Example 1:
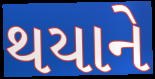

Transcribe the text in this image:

થયાને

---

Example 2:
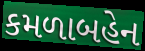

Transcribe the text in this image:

કમળાબહેન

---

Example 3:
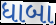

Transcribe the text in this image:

ધાબા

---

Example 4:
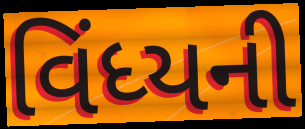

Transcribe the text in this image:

વિંધ્યની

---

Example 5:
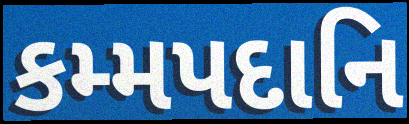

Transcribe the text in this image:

કમ્મપદાનિ